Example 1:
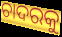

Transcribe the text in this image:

ଚାଦରକୁ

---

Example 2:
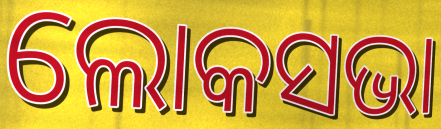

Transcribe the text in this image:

ଲୋକସଭା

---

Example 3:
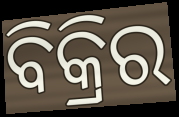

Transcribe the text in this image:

ବିକ୍ରିର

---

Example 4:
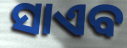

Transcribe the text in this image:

ସାଏବ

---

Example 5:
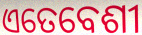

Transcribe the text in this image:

ଏତେବେଶୀ